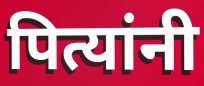
पित्यांनी